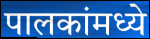
पालकांमध्ये